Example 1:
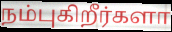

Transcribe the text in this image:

நம்புகிறீர்களா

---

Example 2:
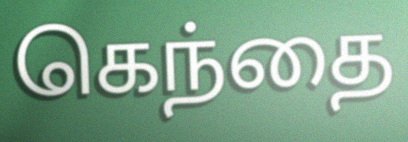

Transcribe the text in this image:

கெந்தை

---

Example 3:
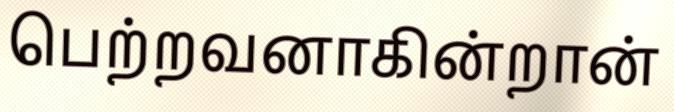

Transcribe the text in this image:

பெற்றவனாகின்றான்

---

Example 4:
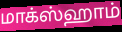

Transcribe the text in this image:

மாக்ஸ்ஹாம்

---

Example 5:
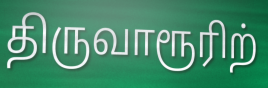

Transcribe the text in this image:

திருவாரூரிற்